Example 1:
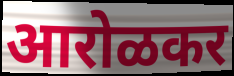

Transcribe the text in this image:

आरोळकर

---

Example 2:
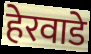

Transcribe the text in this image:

हेरवाडे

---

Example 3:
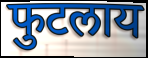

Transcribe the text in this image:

फुटलाय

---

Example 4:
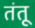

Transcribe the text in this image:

तंतू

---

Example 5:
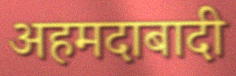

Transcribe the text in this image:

अहमदाबादी